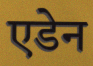
एडेन